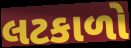
લટકાળો